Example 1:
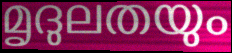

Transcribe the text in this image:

മൃദുലതയും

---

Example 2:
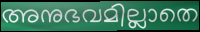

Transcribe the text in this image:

അനുഭവമില്ലാതെ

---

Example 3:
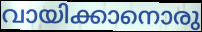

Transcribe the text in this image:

വായിക്കാനൊരു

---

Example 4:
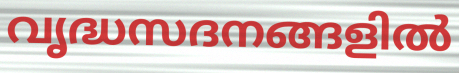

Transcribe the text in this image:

വൃദ്ധസദനങ്ങളിൽ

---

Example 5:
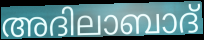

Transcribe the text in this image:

അദിലാബാദ്